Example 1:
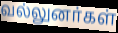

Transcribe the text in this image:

வல்லுனர்கள்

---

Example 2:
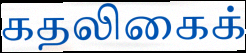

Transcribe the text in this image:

கதலிகைக்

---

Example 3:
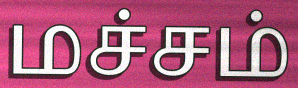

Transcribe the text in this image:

மச்சம்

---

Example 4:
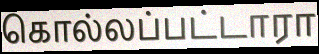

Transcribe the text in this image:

கொல்லப்பட்டாரா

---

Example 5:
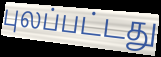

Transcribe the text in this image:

புலப்பட்டது